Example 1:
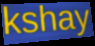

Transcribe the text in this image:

kshay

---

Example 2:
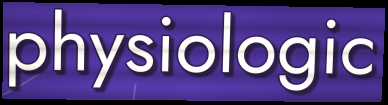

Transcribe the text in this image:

physiologic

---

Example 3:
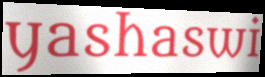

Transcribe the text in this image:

yashaswi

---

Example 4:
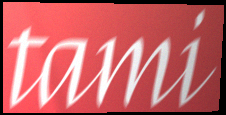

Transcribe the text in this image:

tami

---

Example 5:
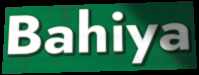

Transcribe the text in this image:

Bahiya